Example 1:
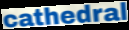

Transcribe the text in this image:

cathedral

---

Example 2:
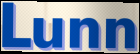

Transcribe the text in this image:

Lunn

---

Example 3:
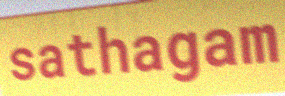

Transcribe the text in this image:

sathagam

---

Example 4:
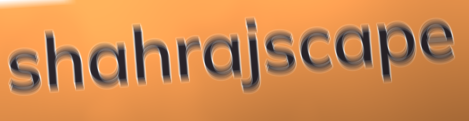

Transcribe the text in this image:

shahrajscape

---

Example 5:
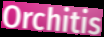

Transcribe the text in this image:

Orchitis